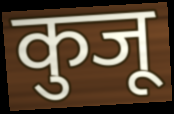
कुजू